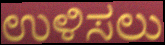
ಉಳಿಸಲು